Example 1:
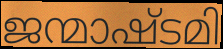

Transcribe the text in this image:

ജന്മാഷ്ടമി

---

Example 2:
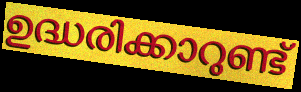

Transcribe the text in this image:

ഉദ്ധരിക്കാറുണ്ട്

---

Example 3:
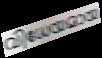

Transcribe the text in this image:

വിധേയമായ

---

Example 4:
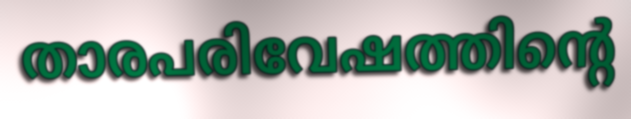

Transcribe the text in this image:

താരപരിവേഷത്തിന്റെ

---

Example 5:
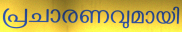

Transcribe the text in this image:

പ്രചാരണവുമായി